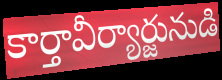
కార్తావీర్యార్జునుడి